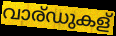
വാര്ഡുകള്